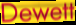
Dewett